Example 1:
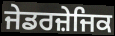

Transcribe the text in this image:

ਜੇਡਰਜ਼ੇਜਿਕ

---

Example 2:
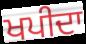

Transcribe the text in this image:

ਖਪੀਦਾ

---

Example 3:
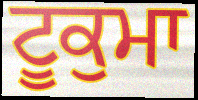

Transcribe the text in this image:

ਟੂਕੁਮਾ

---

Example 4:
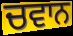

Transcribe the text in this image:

ਚਵਾਨ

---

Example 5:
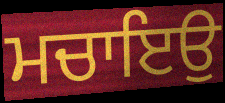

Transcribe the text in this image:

ਮਚਾਇਉ